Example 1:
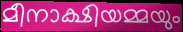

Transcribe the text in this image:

മീനാക്ഷിയമ്മയും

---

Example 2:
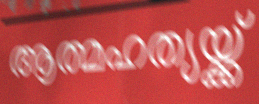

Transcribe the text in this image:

ആത്മഹത്യയ്ക്ക്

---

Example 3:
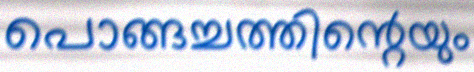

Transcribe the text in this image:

പൊങ്ങച്ചത്തിന്റെയും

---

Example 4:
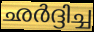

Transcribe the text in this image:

ഛർദ്ദിച്ച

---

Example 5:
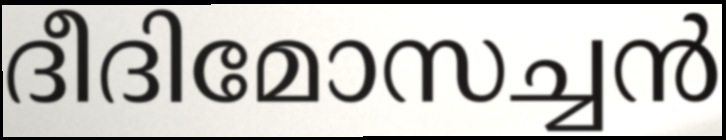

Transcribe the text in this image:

ദീദിമോസച്ചൻ